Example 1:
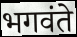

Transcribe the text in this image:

भगवंते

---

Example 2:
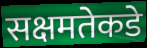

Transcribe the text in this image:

सक्षमतेकडे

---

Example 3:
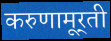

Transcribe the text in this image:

करुणामूर्ती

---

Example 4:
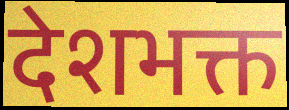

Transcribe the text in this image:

देशभक्त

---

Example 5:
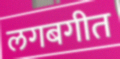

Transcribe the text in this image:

लगबगीत